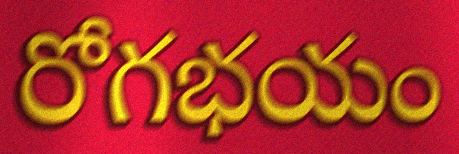
రోగభయం